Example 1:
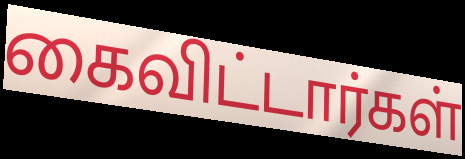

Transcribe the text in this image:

கைவிட்டார்கள்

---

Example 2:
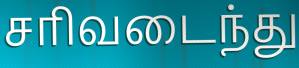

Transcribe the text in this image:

சரிவடைந்து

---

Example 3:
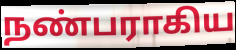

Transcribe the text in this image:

நண்பராகிய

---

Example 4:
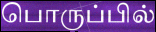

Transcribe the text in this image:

பொருப்பில்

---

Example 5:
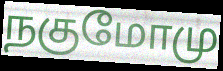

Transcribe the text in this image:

நகுமோமு